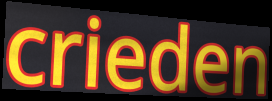
crieden